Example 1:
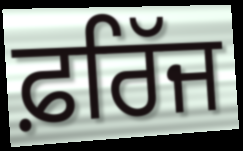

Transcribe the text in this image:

ਫ਼ਰਿੱਜ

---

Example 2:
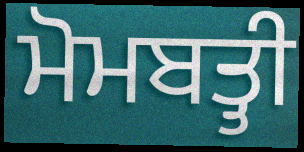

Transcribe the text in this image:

ਮੋਮਬਤ੍ਤੀ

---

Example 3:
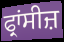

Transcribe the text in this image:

ਫ੍ਰਾਂਸੀਜ਼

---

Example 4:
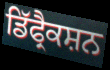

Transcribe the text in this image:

ਡਿੱਫ੍ਰੈਕਸ਼ਨ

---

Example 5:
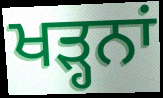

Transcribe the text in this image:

ਖੜ੍ਹਨਾਂ